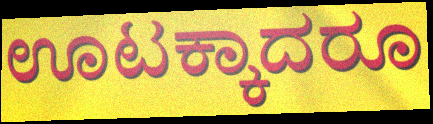
ಊಟಕ್ಕಾದರೂ